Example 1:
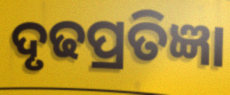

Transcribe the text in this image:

ଦୃଢପ୍ରତିଜ୍ଞା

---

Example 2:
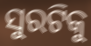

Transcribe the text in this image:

ସୁରଟିକୁ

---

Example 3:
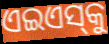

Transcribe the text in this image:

ଏଇଏସ୍‌କୁ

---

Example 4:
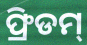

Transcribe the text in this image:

ଫ୍ରିଡମ୍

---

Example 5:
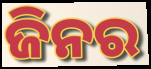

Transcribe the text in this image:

ଜିନର